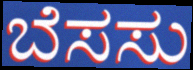
ಬೆಸಸು